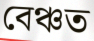
বেঞ্চত